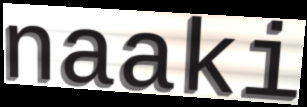
naaki